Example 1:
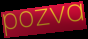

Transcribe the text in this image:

pozva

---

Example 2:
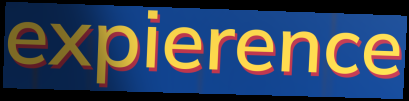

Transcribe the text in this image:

expierence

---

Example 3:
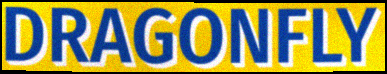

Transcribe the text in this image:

DRAGONFLY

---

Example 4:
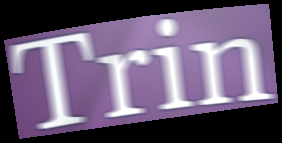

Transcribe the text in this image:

Trin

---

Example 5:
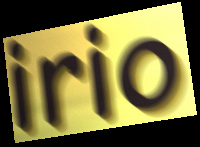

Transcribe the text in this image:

irio